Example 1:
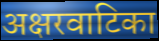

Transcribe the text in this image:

अक्षरवाटिका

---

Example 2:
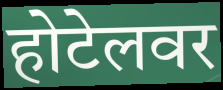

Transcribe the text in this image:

होटेलवर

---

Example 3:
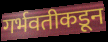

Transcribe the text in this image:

गर्भवतीकडून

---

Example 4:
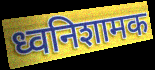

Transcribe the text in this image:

ध्वनिशामक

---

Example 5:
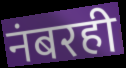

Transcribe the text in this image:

नंबरही